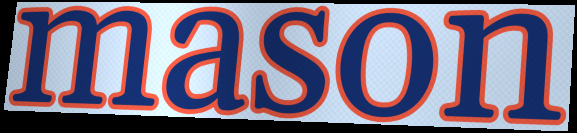
mason